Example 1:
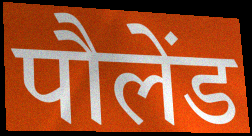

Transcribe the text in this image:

पौलेंड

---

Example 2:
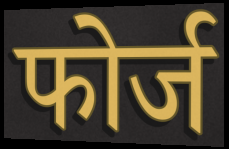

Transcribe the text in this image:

फोर्ज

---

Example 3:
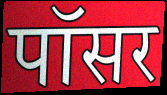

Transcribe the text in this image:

पॉसर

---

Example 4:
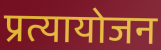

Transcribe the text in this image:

प्रत्यायोजन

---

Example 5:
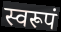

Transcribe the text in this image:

स्वरूपं